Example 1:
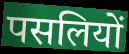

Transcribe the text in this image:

पसलियों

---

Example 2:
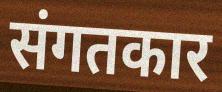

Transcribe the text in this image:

संगतकार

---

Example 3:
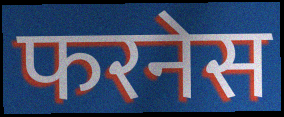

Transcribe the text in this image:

फरनेस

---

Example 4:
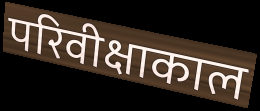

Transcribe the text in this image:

परिवीक्षाकाल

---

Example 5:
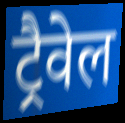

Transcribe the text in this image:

ट्रैवेल